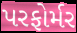
પરફોર્મર